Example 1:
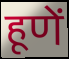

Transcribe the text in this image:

हूणें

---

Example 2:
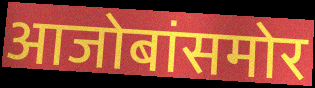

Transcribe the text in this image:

आजोबांसमोर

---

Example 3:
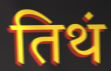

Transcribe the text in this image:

तिथं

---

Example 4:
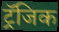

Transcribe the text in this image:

ट्रॅजिक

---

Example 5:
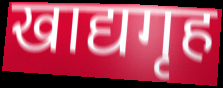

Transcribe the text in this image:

खाद्यगृह